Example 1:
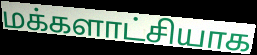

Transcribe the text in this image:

மக்களாட்சியாக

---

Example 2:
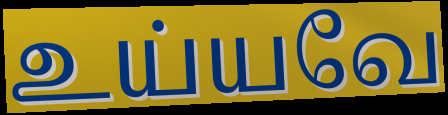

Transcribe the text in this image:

உய்யவே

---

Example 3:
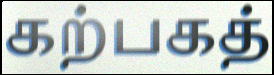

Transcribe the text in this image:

கற்பகத்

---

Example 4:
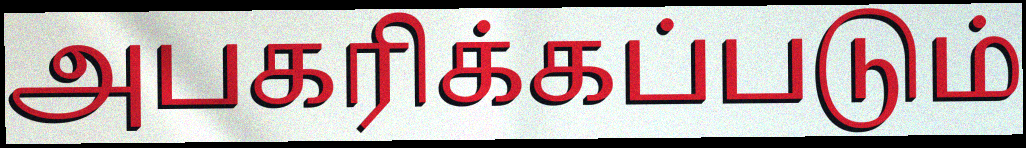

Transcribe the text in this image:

அபகரிக்கப்படும்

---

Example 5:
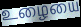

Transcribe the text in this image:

உழையை